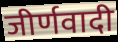
जीर्णवादी